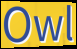
Owl